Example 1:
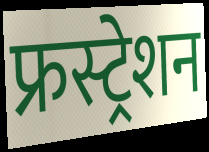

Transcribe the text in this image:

फ्रस्‍ट्रेशन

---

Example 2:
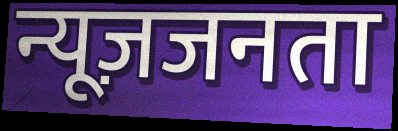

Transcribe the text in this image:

न्यूज़जनता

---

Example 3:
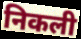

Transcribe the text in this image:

निकली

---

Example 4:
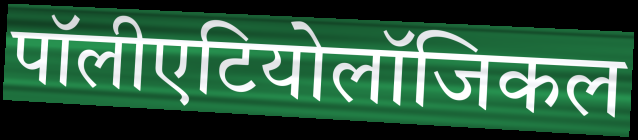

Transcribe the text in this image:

पॉलीएटियोलॉजिकल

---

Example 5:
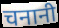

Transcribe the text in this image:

चनानी